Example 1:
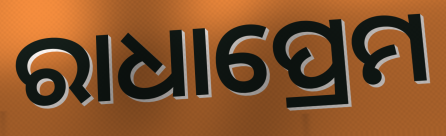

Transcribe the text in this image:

ରାଧାପ୍ରେମ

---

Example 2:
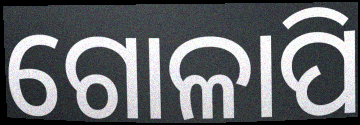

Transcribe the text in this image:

ଗୋଳାପି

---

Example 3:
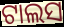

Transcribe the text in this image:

ଟାଲସ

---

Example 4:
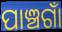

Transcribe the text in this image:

ପାଞ୍ଚଗାଁ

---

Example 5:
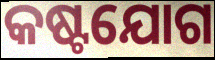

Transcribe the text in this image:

କଷ୍ଟଯୋଗ